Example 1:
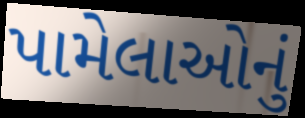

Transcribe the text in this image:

પામેલાઓનું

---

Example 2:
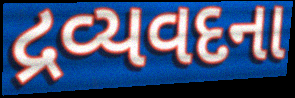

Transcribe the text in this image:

દ્રવ્યવદના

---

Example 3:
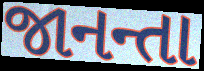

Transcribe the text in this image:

જાનન્તા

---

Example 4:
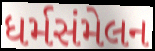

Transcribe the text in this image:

ધર્મસંમેલન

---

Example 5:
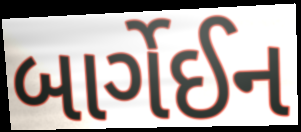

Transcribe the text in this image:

બાર્ગેઈન